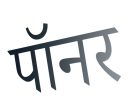
पॉनर